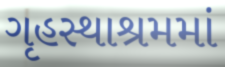
ગૃહસ્થાશ્રમમાં